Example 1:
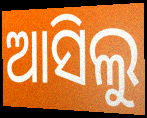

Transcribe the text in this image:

ଆସିଲୁ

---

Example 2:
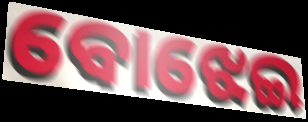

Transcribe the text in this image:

ବୋଝେଇ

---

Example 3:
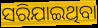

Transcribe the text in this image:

ସରିଯାଇଥିବା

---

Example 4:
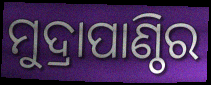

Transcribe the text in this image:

ମୁଦ୍ରାପାଣ୍ଠିର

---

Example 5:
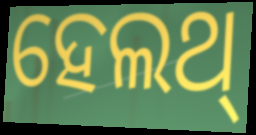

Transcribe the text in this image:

ହେଲଥ୍